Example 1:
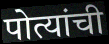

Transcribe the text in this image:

पोत्यांची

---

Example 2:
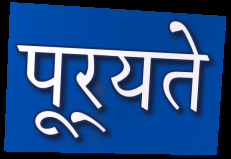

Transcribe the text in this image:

पूर्यते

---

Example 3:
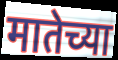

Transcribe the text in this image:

मातेच्या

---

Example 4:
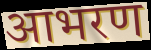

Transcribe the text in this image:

आभरण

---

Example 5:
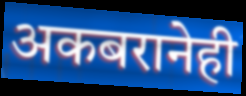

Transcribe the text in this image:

अकबरानेही